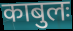
काबुलः